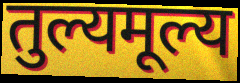
तुल्यमूल्य